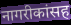
नागरीकांसह